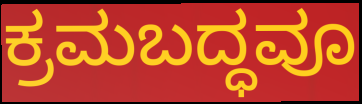
ಕ್ರಮಬದ್ಧವೂ